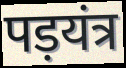
पड़यंत्र